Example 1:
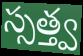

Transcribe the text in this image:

స్సత్త్వ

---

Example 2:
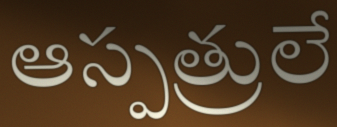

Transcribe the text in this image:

ఆస్పత్రులే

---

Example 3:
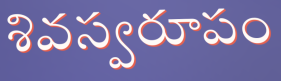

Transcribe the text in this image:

శివస్వరూపం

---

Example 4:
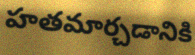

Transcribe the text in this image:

హతమార్చడానికి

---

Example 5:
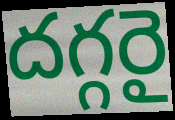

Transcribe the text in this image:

దగ్గరై